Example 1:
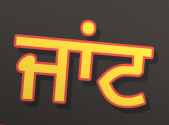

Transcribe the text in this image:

ਜਾਂਟ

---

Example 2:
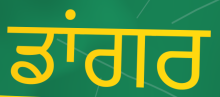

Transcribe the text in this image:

ਡਾਂਗਰ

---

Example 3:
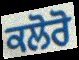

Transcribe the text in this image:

ਕਲੋਰੋ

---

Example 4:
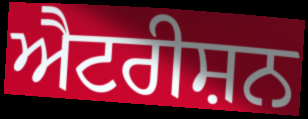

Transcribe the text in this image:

ਐਟਰੀਸ਼ਨ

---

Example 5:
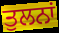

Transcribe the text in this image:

ਤੁਲਨਾਂ